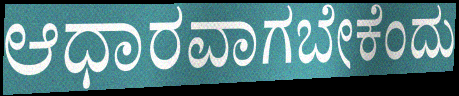
ಆಧಾರವಾಗಬೇಕೆಂದು